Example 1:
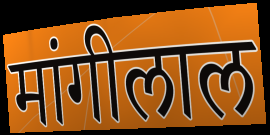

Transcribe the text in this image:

मांगीलाल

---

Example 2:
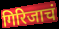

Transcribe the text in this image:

गिरिजाचं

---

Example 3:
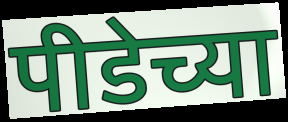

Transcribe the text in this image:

पीडेच्या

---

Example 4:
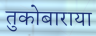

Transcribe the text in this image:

तुकोबाराया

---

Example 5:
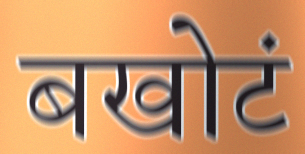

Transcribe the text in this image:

बखोटं